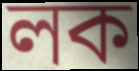
লক